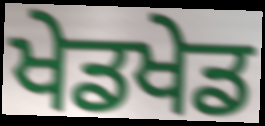
ਖੇਡਖੇਡ